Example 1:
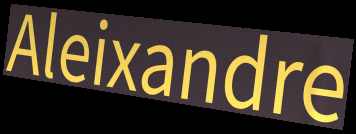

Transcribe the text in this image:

Aleixandre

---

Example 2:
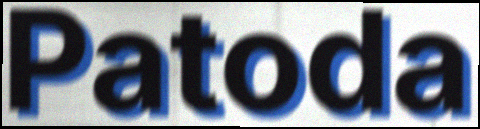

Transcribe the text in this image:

Patoda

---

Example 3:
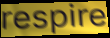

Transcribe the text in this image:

respire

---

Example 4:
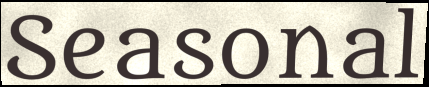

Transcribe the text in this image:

Seasonal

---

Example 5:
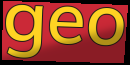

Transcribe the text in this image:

geo